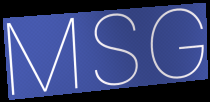
MSG